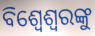
ବିଶ୍ୱେଶ୍ୱରଙ୍କୁ